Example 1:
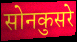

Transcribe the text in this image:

सोनकुसरे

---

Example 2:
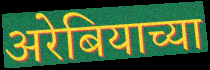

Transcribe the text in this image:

अरेबियाच्या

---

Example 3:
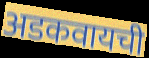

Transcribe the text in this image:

अडकवायची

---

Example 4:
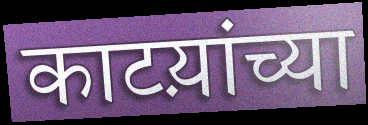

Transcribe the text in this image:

काटय़ांच्या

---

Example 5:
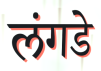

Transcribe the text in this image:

लंगडे